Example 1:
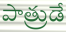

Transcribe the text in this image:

పాత్రుడే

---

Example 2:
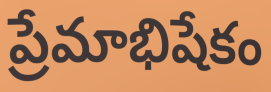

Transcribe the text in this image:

ప్రేమాభిషేకం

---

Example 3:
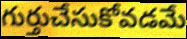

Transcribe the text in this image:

గుర్తుచేసుకోవడమే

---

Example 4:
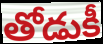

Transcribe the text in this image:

తోడుకీ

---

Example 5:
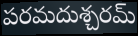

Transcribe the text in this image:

పరమదుశ్చరమ్